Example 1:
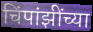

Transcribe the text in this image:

चिंपांझींच्या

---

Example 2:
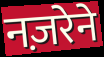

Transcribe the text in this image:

नज़रेने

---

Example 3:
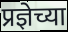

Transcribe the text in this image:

प्रज्ञेच्या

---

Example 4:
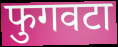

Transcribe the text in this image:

फुगवटा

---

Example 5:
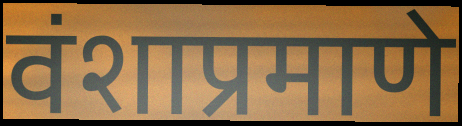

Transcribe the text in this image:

वंशाप्रमाणे